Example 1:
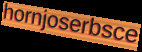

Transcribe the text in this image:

hornjoserbsce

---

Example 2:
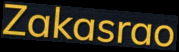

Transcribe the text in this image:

Zakasrao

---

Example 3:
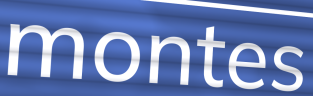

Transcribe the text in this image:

montes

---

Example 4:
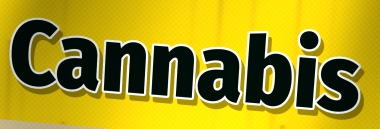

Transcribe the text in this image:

Cannabis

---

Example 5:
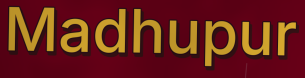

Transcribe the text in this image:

Madhupur